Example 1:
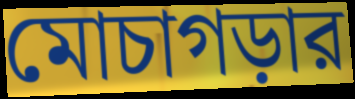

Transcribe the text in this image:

মোচাগড়ার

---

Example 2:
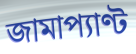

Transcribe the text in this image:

জামাপ্যাণ্ট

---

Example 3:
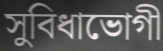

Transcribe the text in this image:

সুবিধাভোগী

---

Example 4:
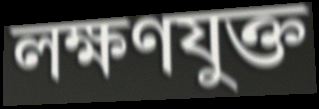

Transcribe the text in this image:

লক্ষণযুক্ত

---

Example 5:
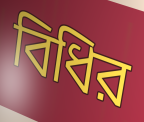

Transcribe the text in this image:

বিধির